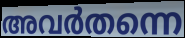
അവർതന്നെ